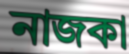
নাজকা